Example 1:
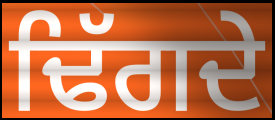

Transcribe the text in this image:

ਢਿੱਗਦੇ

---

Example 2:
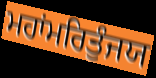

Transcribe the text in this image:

ਮਹਾਂਮਰਿਤੁੰਜਯ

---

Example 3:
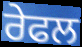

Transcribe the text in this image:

ਰੇਫਲ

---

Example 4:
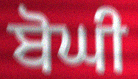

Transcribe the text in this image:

ਬੋਘੀ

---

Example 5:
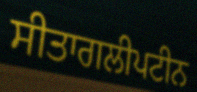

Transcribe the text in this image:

ਸੀਤਾਗਲੀਪਟੀਨ